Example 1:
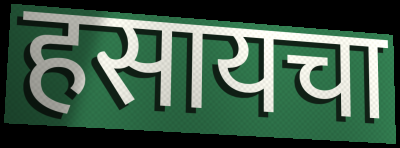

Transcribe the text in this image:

हसायचा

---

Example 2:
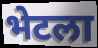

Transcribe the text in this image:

भेटला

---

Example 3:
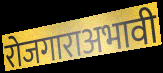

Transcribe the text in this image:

रोजगाराअभावी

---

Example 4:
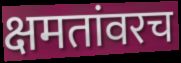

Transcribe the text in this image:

क्षमतांवरच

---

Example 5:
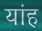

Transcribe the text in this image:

यांह